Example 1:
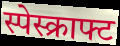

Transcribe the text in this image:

स्पेस्क्राफ्ट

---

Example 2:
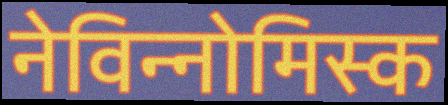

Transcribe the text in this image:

नेविन्नोमिस्क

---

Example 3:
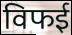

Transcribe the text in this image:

विफई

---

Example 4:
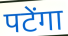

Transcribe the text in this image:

पटेंगा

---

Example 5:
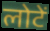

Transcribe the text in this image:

लोटें